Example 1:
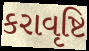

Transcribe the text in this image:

કરાવૃષ્ટિ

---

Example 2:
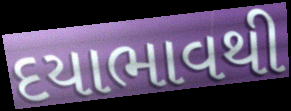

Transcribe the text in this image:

દયાભાવથી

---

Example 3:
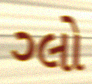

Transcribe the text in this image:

ગ્લો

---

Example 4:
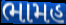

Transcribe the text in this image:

ભામહ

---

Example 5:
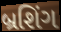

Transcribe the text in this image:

બ્રશિંગ